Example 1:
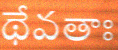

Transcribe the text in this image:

థేవతాః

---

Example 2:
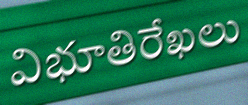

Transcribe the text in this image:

విభూతిరేఖలు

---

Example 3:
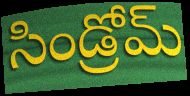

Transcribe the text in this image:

సిండ్రోమ్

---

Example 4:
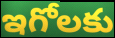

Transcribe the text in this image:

ఇగోలకు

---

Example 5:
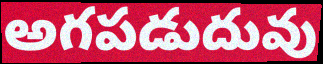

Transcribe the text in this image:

అగపడుదువు